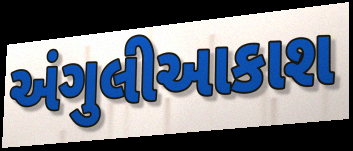
અંગુલીઆકાશ